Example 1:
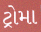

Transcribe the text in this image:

ટ્રોમા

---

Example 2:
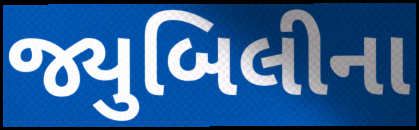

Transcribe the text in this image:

જ્યુબિલીના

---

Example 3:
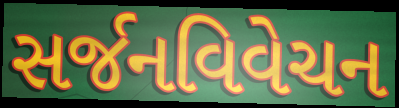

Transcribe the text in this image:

સર્જનવિવેચન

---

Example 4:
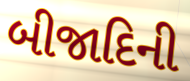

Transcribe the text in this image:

બીજાદિની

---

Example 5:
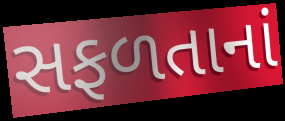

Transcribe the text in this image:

સફળતાનાં